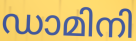
ഡാമിനി